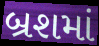
બ્રશમાં